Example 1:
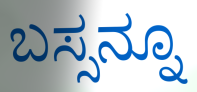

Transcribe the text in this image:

ಬಸ್ಸನ್ನೂ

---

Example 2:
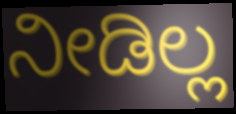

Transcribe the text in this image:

ನೀಡಿಲ್ಲ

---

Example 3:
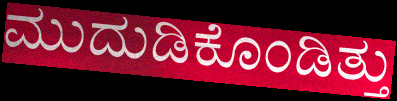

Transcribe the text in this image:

ಮುದುಡಿಕೊಂಡಿತ್ತು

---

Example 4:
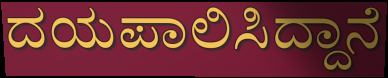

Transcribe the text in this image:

ದಯಪಾಲಿಸಿದ್ದಾನೆ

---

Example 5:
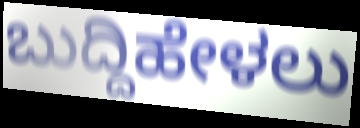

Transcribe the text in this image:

ಬುದ್ದಿಹೇಳಲು